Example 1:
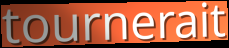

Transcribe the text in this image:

tournerait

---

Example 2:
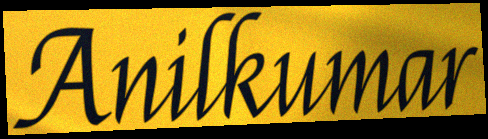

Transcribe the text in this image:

Anilkumar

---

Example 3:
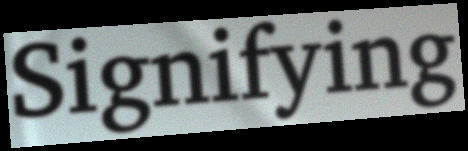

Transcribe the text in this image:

Signifying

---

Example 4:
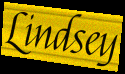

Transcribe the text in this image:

Lindsey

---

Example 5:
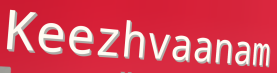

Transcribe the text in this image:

Keezhvaanam